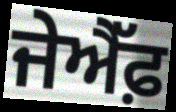
ਜੇਐੱਫ਼